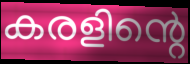
കരളിന്റെ